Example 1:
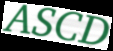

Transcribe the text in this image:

ASCD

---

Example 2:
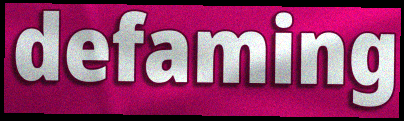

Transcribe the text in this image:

defaming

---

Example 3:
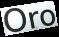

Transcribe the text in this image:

Oro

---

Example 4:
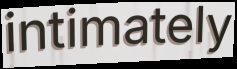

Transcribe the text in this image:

intimately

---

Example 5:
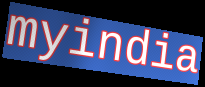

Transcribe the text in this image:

myindia